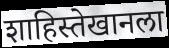
शाहिस्तेखानला